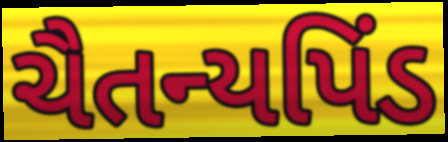
ચૈતન્યપિંડ